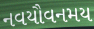
નવયૌવનમય